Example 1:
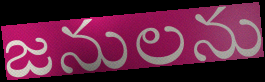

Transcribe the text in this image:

జనులను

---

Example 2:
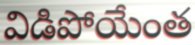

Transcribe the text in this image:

విడిపోయేంత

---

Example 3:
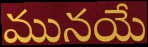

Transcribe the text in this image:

మునయే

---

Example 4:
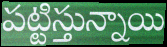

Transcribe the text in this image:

పట్టిస్తున్నాయి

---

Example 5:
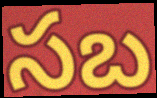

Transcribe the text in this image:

సబ